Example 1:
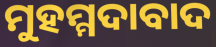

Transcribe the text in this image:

ମୁହମ୍ମଦାବାଦ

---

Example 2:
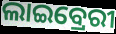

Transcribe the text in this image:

ଲାଇବ୍ରେରୀ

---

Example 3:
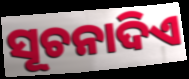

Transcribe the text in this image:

ସୂଚନାଦିଏ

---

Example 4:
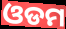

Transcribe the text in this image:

ଓଡମ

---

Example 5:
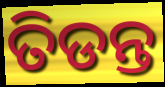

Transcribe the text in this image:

ତିଡନ୍ତ